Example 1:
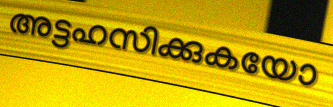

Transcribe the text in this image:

അട്ടഹസിക്കുകയോ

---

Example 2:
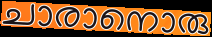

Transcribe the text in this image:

ചാരാനൊരു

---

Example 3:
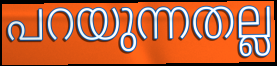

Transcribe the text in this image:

പറയുന്നതല്ല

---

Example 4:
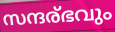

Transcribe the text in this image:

സന്ദര്ഭവും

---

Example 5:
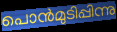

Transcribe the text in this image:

പൊൻമുടിപ്പിന്നു